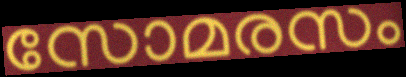
സോമരസം